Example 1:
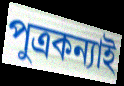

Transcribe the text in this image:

পুত্রকন্যাই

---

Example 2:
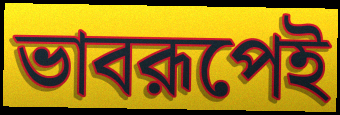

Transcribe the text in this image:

ভাবরূপেই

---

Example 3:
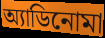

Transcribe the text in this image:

অ্যাডিনোমা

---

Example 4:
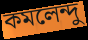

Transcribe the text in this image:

কমলেন্দু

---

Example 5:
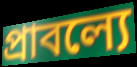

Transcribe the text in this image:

প্রাবল্যে